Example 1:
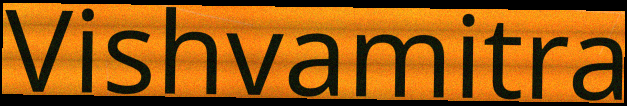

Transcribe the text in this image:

Vishvamitra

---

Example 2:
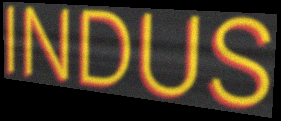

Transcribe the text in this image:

INDUS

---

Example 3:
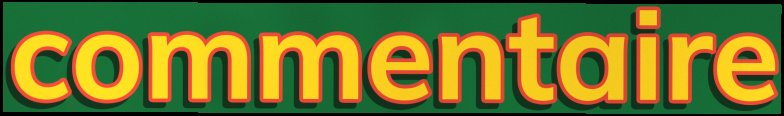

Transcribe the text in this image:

commentaire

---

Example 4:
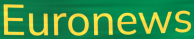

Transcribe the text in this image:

Euronews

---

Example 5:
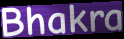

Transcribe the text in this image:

Bhakra